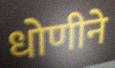
धोणीने